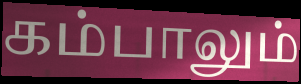
கம்பாலும்